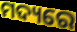
ମଦ୍ୟରେ